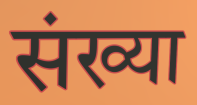
संख्या